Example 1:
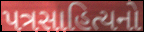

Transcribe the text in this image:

પત્રસાહિત્યનો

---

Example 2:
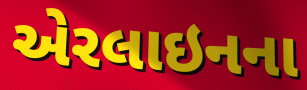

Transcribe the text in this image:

એરલાઇનના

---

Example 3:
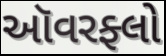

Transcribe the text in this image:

ઑવરફ્લો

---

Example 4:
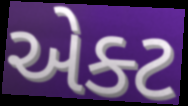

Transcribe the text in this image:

એક્ટ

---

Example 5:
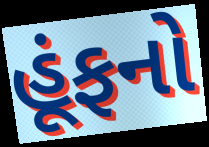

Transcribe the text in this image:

હૂંફનો